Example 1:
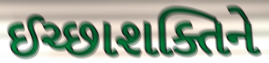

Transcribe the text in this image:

ઈચ્છાશક્તિને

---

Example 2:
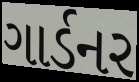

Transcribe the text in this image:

ગાર્ડનર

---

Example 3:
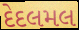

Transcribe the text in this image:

દેદલમલ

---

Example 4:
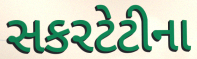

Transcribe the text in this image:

સકરટેટીના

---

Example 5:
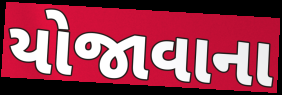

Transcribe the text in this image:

યોજાવાના